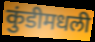
कुंडीमधली